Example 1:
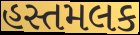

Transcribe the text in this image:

હસ્તમલક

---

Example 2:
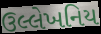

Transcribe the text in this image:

ઉલ્લેખનિય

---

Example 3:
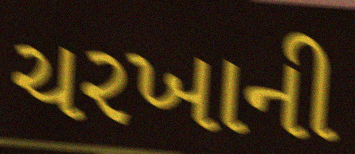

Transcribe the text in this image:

ચરખાની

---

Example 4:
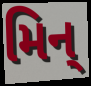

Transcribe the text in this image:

મિન્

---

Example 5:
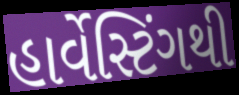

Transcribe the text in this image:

હાર્વેસ્ટિંગથી